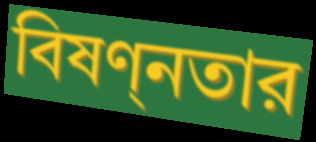
বিষণ্নতার